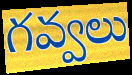
గవ్వలు